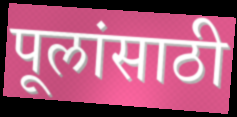
पूलांसाठी